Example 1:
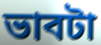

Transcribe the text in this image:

ভাবটা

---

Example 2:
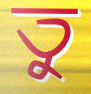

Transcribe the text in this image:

তু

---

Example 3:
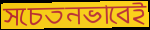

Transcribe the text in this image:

সচেতনভাবেই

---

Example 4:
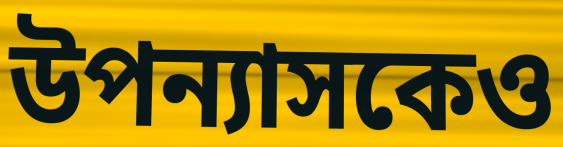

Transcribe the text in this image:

উপন্যাসকেও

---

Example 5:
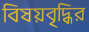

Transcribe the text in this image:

বিষয়বৃদ্ধির